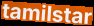
tamilstar